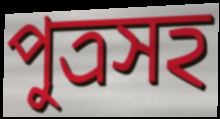
পুত্রসহ